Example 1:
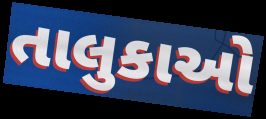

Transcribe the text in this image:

તાલુકાઓ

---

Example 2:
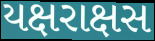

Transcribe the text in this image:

યક્ષરાક્ષસ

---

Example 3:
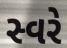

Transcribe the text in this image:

સ્વરે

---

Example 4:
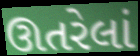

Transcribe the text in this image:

ઊતરેલાં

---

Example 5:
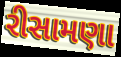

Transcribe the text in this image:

રીસામણા